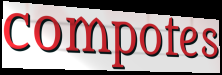
compotes